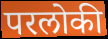
परलोकी